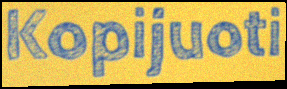
Kopijuoti